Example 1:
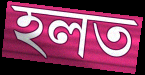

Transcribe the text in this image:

হলত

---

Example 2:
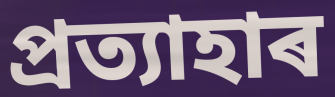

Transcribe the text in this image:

প্ৰত্যাহাৰ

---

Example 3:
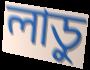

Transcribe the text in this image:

লাডু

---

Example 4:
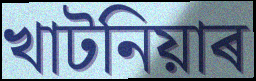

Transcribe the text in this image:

খাটনিয়াৰ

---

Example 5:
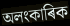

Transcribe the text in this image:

অলংকাৰিক